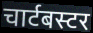
चार्टबस्टर